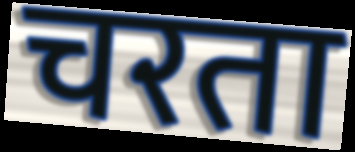
चरता